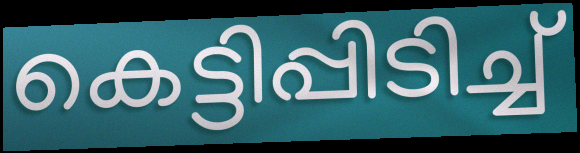
കെട്ടിപ്പിടിച്ച്